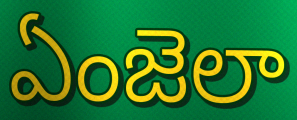
ఏంజెలా